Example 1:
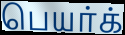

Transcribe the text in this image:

பெயர்க்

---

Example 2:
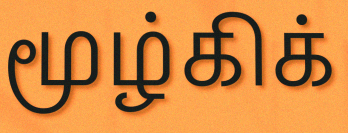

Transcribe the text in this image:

மூழ்கிக்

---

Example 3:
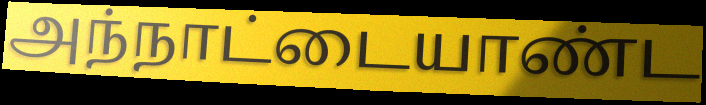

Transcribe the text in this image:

அந்நாட்டையாண்ட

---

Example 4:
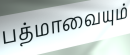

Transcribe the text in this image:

பத்மாவையும்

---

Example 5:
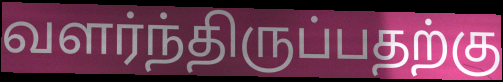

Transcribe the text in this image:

வளர்ந்திருப்பதற்கு